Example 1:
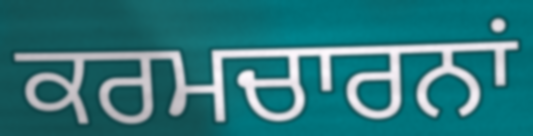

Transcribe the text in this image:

ਕਰਮਚਾਰਨਾਂ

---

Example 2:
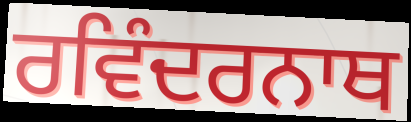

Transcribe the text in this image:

ਰਵਿੰਦਰਨਾਥ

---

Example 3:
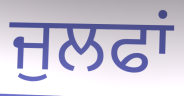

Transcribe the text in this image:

ਜੁਲਫਾਂ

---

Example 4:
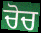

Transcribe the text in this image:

ਚੋਚ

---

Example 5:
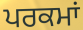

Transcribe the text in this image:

ਪਰਕਮਾਂ